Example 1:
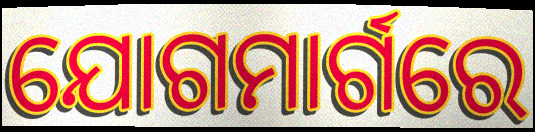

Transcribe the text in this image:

ଯୋଗମାର୍ଗରେ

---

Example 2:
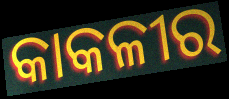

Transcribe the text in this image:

କାକଳୀର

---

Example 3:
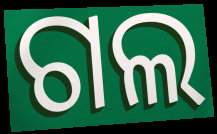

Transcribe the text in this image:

ଗଲ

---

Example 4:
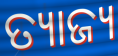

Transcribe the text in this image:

ତ୍ୟାଜ୍ୟ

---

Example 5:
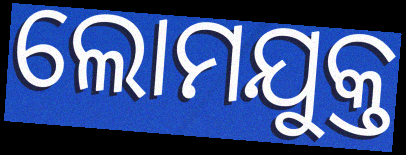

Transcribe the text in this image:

ଲୋମଯୁକ୍ତ